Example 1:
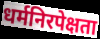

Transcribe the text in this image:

धर्मनिरपेक्षता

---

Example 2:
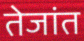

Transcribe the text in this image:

तेजांत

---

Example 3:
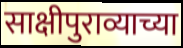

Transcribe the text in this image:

साक्षीपुराव्याच्या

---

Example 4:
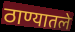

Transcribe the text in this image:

ठाण्यातले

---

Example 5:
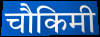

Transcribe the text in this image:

चौकिमी